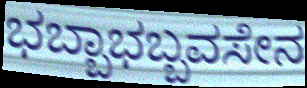
ಭಬ್ಬಾಭಬ್ಬವಸೇನ